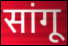
सांगू